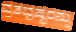
ವ್ರತಭ್ರಷ್ಟರನ್ನು